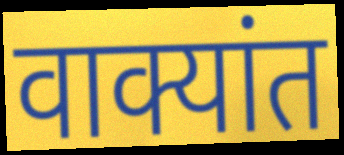
वाक्यांत